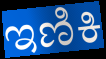
ಇಣಿಕಿ